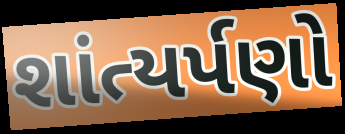
શાંત્યર્પણો